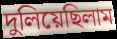
দুলিয়েছিলাম